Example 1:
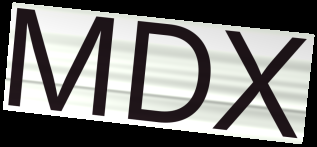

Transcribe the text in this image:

MDX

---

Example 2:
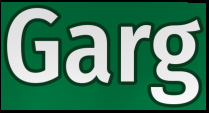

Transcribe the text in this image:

Garg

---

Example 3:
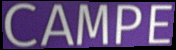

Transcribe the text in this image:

CAMPE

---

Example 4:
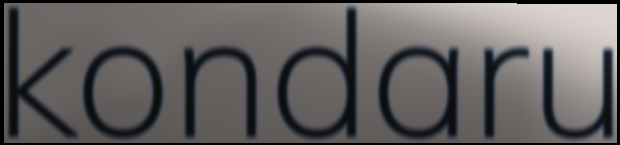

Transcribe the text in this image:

kondaru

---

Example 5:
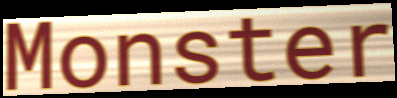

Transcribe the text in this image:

Monster